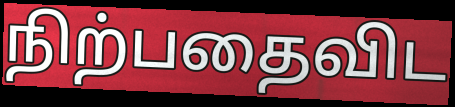
நிற்பதைவிட